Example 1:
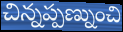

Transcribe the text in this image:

చిన్నప్పణ్నుంచి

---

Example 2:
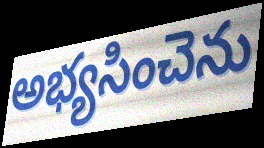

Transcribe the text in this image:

అభ్యసించెను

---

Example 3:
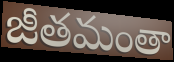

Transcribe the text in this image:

జీతమంతా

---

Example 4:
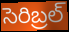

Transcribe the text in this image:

సెరిబ్రల్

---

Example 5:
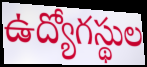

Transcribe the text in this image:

ఉద్యోగస్థుల